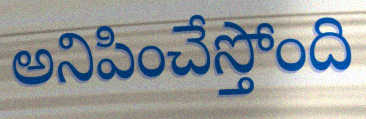
అనిపించేస్తోంది